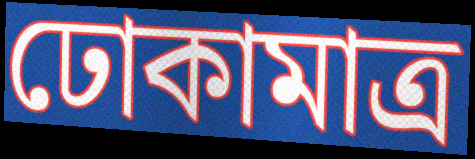
ঢোকামাত্র